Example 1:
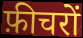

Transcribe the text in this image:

फ़ीचरों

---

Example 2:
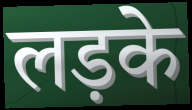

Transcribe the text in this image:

लड़के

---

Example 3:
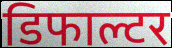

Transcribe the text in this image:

डिफाल्टर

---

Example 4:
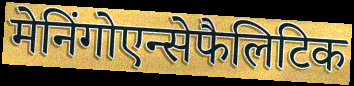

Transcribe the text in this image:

मेनिंगोएन्सेफैलिटिक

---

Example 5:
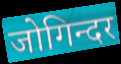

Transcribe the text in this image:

जोगिन्दर